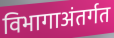
विभागाअंतर्गत